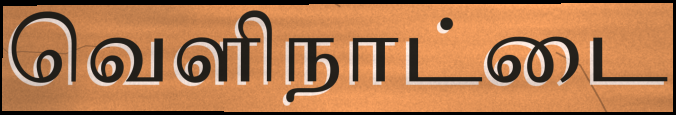
வெளிநாட்டை